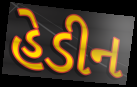
હેડીન